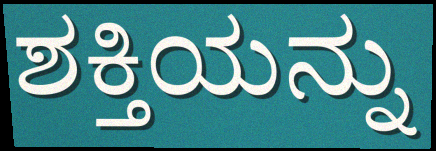
ಶಕ್ತಿಯನ್ನು